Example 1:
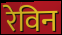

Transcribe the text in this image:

रेविन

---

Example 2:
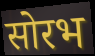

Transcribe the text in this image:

सोरभ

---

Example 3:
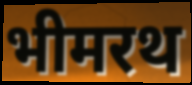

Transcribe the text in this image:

भीमरथ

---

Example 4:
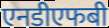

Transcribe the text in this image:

एनडीएफबी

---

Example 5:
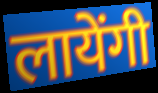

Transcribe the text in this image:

लायेंगी